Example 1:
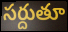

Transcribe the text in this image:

సర్దుతూ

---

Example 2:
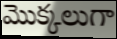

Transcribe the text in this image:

మొక్కలుగా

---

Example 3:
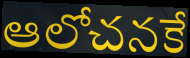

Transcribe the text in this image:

ఆలోచనకే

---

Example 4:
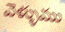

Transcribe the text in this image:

వెళ్ళుము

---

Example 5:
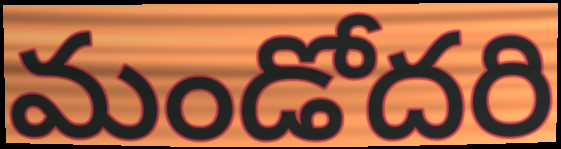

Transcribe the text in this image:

మండోదరి